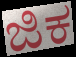
ಜಿಕ